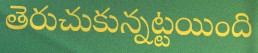
తెరుచుకున్నట్టయింది